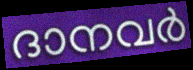
ദാനവർ